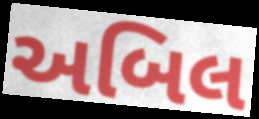
અબિલ